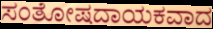
ಸಂತೋಷದಾಯಕವಾದ